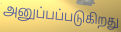
அனுப்பப்படுகிறது